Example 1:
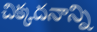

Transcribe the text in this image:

చిక్కదనాన్ని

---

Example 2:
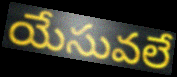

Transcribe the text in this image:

యేసువలే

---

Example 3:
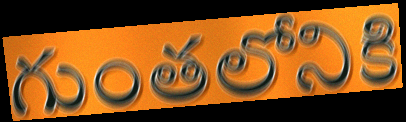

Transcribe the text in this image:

గుంతలోనికి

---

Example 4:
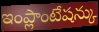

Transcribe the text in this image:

ఇంప్లాంటేషన్కు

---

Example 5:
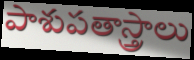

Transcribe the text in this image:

పాశుపతాస్త్రాలు